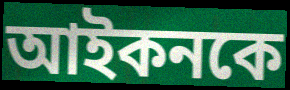
আইকনকে